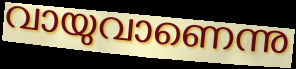
വായുവാണെന്നു